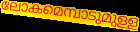
ലോകമെമ്പാടുമുള്ള